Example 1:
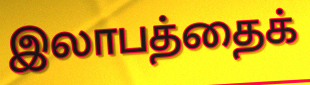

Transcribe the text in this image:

இலாபத்தைக்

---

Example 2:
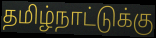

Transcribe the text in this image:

தமிழ்நாட்டுக்கு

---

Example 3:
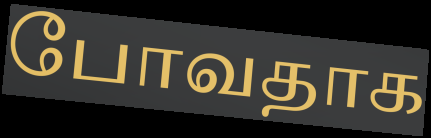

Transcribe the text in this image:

போவதாக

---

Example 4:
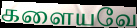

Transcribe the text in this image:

களையவே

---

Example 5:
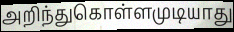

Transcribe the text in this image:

அறிந்துகொள்ளமுடியாது